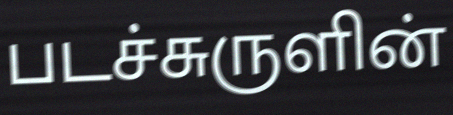
படச்சுருளின்